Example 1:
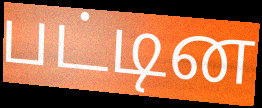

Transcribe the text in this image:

பட்டின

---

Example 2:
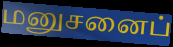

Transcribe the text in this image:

மனுசனைப்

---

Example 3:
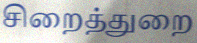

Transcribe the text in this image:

சிறைத்துறை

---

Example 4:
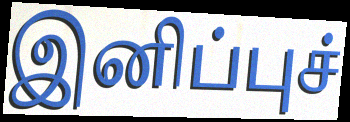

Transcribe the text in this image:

இனிப்புச்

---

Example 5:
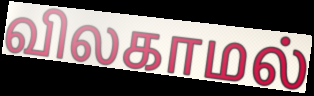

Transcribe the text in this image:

விலகாமல்